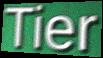
Tier